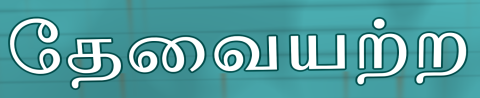
தேவையற்ற